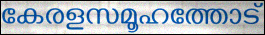
കേരളസമൂഹത്തോട്